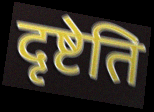
दृष्टेति